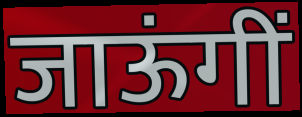
जाऊंगीं